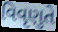
વિવૃણુતે